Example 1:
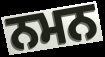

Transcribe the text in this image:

ਨਮਨ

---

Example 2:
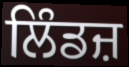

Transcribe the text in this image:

ਲਿੰਡਜ਼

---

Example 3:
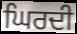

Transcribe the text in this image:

ਘਿਰਦੀ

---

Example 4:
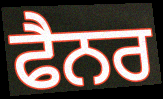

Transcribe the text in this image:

ਫੈਨਰ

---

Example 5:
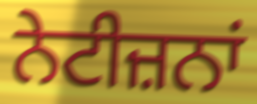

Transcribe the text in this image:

ਨੇਟੀਜ਼ਨਾਂ